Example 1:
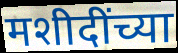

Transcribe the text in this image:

मशीदींच्या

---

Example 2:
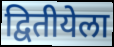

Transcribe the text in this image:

द्वितीयेला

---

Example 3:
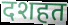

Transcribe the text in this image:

दशहत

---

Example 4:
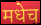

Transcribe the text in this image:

मधेच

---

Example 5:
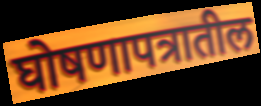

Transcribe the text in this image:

घोषणापत्रातील